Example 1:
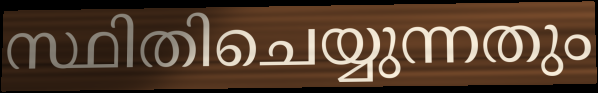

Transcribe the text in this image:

സ്ഥിതിചെയ്യുന്നതും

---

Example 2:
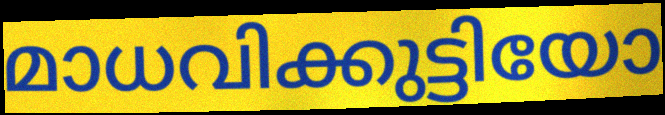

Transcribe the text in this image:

മാധവിക്കുട്ടിയോ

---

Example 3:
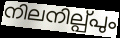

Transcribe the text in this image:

നിലനില്പ്പും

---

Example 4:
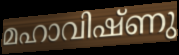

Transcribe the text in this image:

മഹാവിഷ്ണു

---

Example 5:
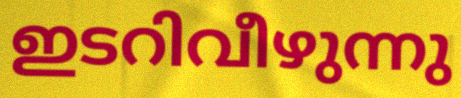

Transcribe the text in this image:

ഇടറിവീഴുന്നു